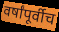
वर्षांपूर्वीच